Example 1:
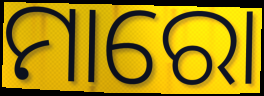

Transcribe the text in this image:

ମାରୋ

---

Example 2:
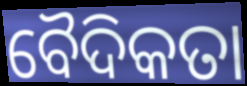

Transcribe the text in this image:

ବୈଦିକତା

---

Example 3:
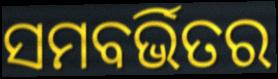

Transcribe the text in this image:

ସମବର୍ଭିତର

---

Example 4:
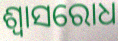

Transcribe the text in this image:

ଶ୍ୱାସରୋଧ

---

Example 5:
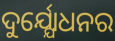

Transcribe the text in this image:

ଦୁର୍ଯ୍ଯୋଧନର